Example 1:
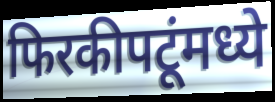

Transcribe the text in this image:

फिरकीपटूंमध्ये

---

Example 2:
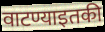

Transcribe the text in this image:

वाटण्याइतकी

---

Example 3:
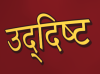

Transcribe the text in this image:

उद्‌दिष्‍ट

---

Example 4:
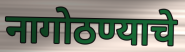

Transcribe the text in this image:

नागोठण्याचे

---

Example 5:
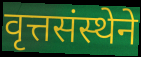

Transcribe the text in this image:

वृत्तसंस्थेने